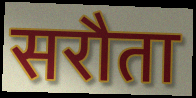
सरौता